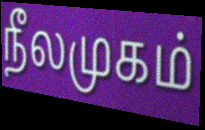
நீலமுகம்